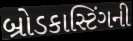
બ્રોડકાસ્ટિંગની